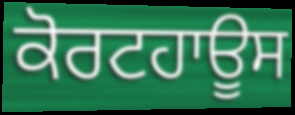
ਕੋਰਟਹਾਊਸ